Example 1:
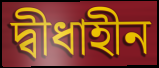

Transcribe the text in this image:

দ্বীধাহীন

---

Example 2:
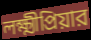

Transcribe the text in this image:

লক্ষ্মীপ্রিয়ার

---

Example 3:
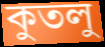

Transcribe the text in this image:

কুতলু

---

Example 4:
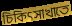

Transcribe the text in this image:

চিকিৎসাখাতে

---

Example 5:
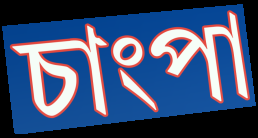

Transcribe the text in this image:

চাংপা